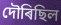
দৌৰিছিল